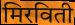
मिरविती